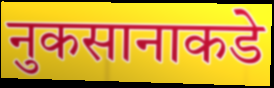
नुकसानाकडे